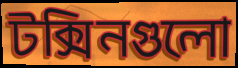
টক্সিনগুলো